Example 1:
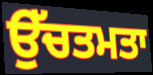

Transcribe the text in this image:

ਉੱਚਤਮਤਾ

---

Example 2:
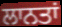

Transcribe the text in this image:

ਲਾਨਤਾਂ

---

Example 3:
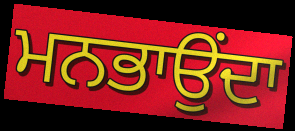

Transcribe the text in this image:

ਮਨਭਾਉਂਦਾ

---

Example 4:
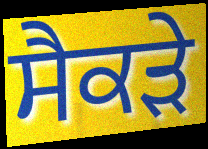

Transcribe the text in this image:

ਸੈਕੜੇ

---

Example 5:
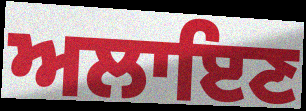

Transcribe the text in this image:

ਅਲਾਇਣ